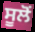
ਸੂਲੋਂ